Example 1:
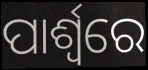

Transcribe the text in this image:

ପାର୍ଶ୍ଵରେ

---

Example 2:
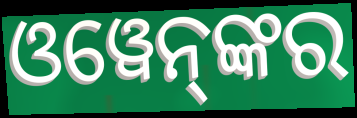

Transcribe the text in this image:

ଓୱେନ୍‌ଙ୍କର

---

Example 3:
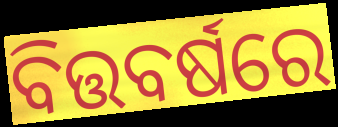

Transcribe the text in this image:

ବିତ୍ତବର୍ଷରେ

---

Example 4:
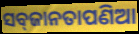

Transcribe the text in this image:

ସବ୍‌ଜାନତାପଣିଆ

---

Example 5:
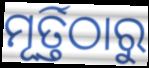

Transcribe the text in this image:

ମୂର୍ତ୍ତିଠାରୁ